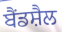
ਬੈਂਡਸ਼ੈਲ